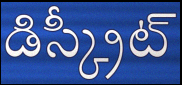
డిస్క్రీట్